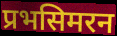
प्रभसिमरन